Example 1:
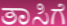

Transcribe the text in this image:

ತಾಸಿಗೆ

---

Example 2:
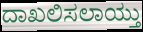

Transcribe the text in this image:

ದಾಖಲಿಸಲಾಯ್ತು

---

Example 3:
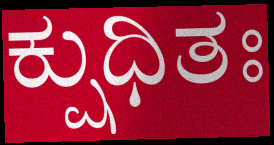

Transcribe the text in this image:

ಕ್ಷುಧಿತಃ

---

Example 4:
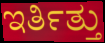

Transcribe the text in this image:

ಇರ್ತಿತ್ತು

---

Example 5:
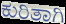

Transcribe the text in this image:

ಕುರಿತಾಗಿ